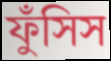
ফুঁসিস